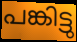
പങ്കിട്ടു